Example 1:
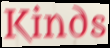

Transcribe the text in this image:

Kinds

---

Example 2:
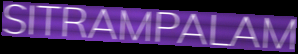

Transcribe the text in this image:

SITRAMPALAM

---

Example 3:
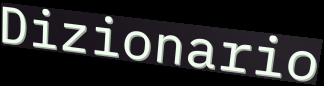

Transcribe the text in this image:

Dizionario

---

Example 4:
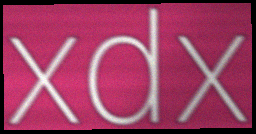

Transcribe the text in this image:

xdx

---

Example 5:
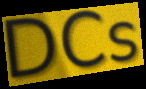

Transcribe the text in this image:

DCs